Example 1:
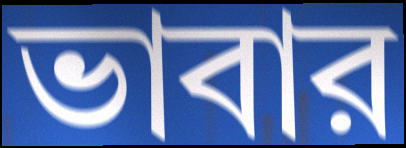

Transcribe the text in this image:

ভাবার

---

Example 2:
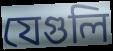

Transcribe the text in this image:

যেগুলি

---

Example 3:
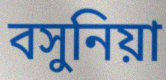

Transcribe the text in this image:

বসুনিয়া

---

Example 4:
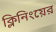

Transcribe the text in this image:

ক্লিনিংয়ের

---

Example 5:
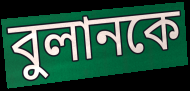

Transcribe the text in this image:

বুলানকে